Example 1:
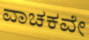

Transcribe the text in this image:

ವಾಚಕವೇ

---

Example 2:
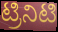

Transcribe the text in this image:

ಟ್ರಿನಿಟಿ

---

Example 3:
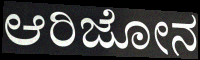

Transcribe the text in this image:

ಆರಿಜೋನ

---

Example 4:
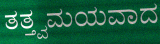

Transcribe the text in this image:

ತತ್ತ್ವಮಯವಾದ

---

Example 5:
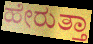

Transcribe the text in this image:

ಹೇರುತ್ತಾ